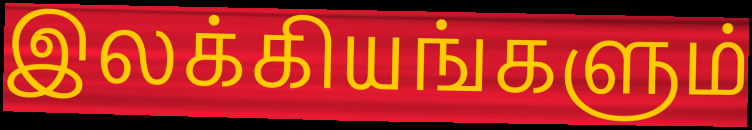
இலக்கியங்களும்